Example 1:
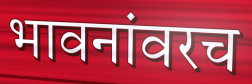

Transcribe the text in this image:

भावनांवरच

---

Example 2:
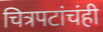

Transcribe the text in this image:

चित्रपटांचंही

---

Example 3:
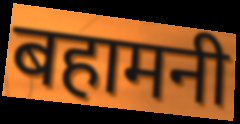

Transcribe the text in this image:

बहामनी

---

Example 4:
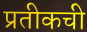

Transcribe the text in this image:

प्रतीकची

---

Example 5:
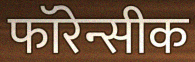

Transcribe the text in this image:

फॉरेन्सीक